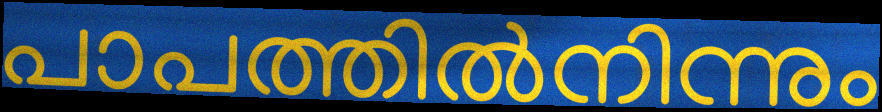
പാപത്തിൽനിന്നും